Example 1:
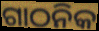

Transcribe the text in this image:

ଗାଠନିକ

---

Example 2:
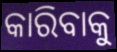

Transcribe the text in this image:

କାରିବାକୁ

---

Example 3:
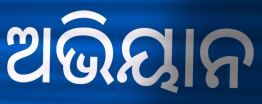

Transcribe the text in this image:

ଅଭିୟାନ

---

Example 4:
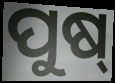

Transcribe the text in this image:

ପୁଷ୍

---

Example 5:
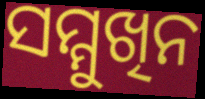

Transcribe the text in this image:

ସମ୍ମୁଖିନ